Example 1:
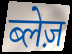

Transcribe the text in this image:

ब्लेज़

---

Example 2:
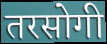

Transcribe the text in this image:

तरसोगी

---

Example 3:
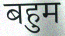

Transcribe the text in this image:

बहुम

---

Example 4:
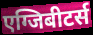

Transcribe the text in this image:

एग्जिबीटर्स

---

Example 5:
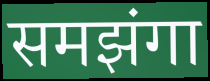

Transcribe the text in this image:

समझंगा